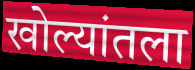
खोल्यांतला